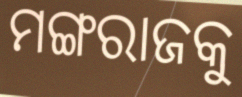
ମଙ୍ଗରାଜକୁ